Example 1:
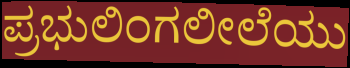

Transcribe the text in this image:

ಪ್ರಭುಲಿಂಗಲೀಲೆಯು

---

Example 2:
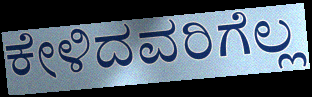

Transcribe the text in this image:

ಕೇಳಿದವರಿಗೆಲ್ಲ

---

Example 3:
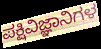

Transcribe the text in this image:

ಪಕ್ಷಿವಿಜ್ಞಾನಿಗಳ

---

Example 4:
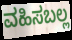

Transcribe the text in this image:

ವಹಿಸಬಲ್ಲ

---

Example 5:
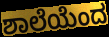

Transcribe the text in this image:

ಶಾಲೆಯೆಂದ